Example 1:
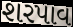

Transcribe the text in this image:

શરપાવ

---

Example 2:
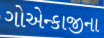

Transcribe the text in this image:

ગોએન્કાજીના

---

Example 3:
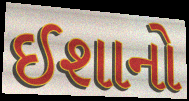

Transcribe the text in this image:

ઈશાનો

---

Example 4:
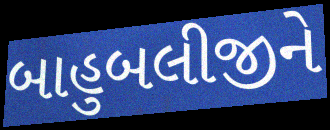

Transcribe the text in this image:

બાહુબલીજીને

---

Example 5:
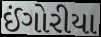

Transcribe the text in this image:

ઈંગોરીયા